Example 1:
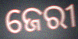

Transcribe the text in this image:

ଜେରୀ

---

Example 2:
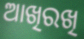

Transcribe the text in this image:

ଆଖିରଖି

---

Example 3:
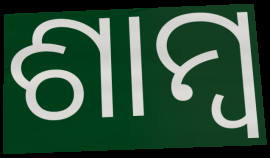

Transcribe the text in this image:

ଶାମ୍ୱ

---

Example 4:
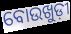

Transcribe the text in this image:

ବୋଉଖୁଡ଼ୀ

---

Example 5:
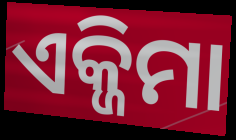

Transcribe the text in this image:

ଏକ୍ଜିମା